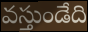
వస్తుండేది